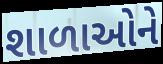
શાળાઓને